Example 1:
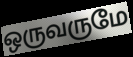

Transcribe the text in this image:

ஒருவருமே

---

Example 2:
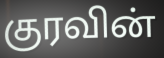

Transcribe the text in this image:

குரவின்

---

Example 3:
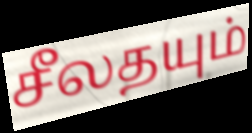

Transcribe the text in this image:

சீலதயும்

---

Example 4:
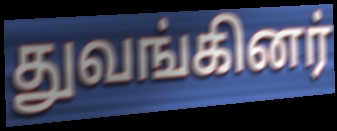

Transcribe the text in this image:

துவங்கினர்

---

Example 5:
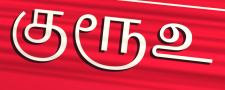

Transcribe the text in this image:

குரூஉ